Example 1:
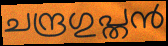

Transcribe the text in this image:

ചന്ദ്രഗുപ്തൻ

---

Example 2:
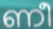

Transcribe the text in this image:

ണീ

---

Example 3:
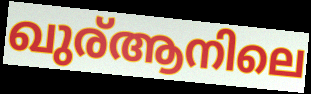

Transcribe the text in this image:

ഖുര്ആനിലെ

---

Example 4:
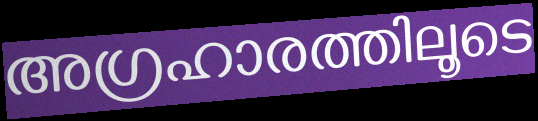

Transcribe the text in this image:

അഗ്രഹാരത്തിലൂടെ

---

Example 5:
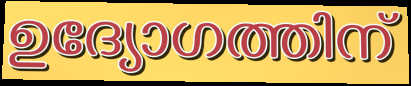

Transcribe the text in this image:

ഉദ്യോഗത്തിന്